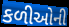
કળીઓની